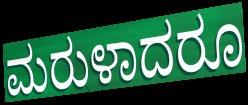
ಮರುಳಾದರೂ